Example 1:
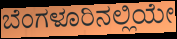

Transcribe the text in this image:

ಬೆಂಗಳೂರಿನಲ್ಲಿಯೇ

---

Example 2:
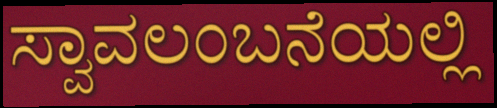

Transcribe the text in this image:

ಸ್ವಾವಲಂಬನೆಯಲ್ಲಿ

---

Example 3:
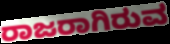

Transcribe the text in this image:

ರಾಜರಾಗಿರುವ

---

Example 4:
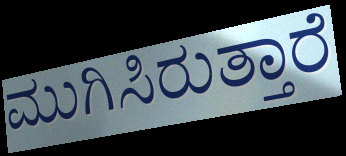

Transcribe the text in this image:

ಮುಗಿಸಿರುತ್ತಾರೆ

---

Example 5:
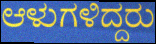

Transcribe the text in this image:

ಆಳುಗಳಿದ್ದರು